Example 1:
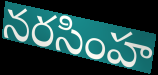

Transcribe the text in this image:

నరసింహ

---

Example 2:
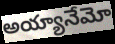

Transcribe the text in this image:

అయ్యానేమో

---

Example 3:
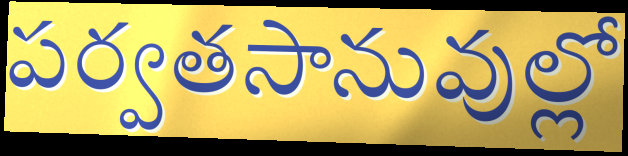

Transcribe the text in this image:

పర్వతసానువుల్లో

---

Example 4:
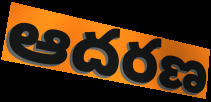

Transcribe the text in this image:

ఆదరణ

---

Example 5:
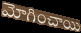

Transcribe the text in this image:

మోగించాయి